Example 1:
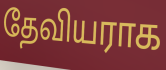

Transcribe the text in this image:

தேவியராக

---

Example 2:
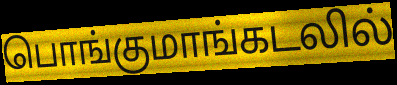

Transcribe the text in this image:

பொங்குமாங்கடலில்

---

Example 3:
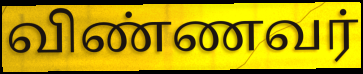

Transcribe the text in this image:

விண்ணவர்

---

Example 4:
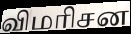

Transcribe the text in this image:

விமரிசன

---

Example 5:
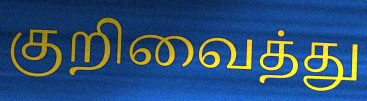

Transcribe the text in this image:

குறிவைத்து